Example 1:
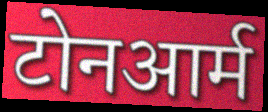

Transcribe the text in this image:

टोनआर्म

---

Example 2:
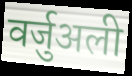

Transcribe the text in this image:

वर्जुअली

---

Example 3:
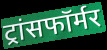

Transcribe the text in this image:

ट्रांसफॉर्मर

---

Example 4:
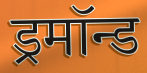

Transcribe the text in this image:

ड्रमॉन्ड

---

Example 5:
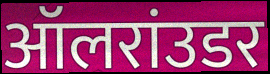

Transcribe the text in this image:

ऑलरांउडर